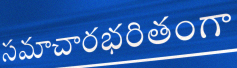
సమాచారభరితంగా